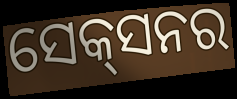
ସେକ୍‌ସନର